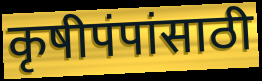
कृषीपंपांसाठी